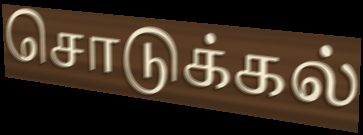
சொடுக்கல்